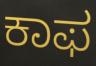
ಕಾಫ